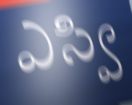
ఎస్వి